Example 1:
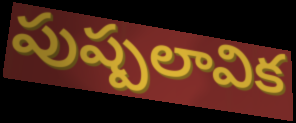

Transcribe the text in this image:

పుష్పలావిక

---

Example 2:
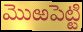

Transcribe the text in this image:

మొఱపెట్టి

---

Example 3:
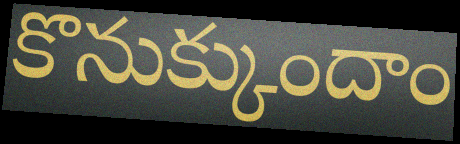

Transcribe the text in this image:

కొనుక్కుందాం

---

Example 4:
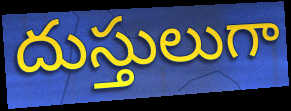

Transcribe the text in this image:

దుస్తులుగా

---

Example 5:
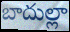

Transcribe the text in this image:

బాదుల్లా